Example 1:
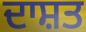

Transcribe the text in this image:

ਦਾਸ਼ਤ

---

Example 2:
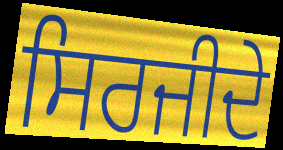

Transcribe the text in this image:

ਸਿਰਜੀਦੇ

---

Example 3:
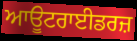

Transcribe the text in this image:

ਆਊਟਰਾਈਡਰਜ਼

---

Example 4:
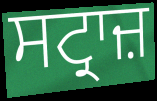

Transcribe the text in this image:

ਸਟ੍ਰਾਜ਼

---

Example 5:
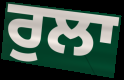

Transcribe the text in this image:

ਰੁਲਾ